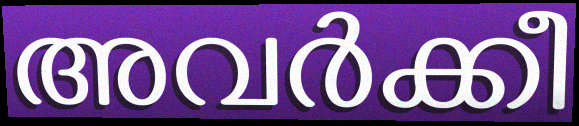
അവർക്കീ